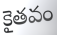
కైతవం